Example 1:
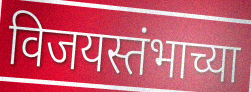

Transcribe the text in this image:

विजयस्तंभाच्या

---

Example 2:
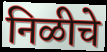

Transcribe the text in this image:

निळीचे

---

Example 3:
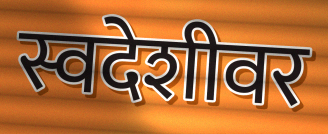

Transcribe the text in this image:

स्वदेशीवर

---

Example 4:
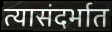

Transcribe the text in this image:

त्यासंदर्भात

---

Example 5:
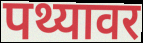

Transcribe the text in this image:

पथ्यावर